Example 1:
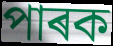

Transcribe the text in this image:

পাৰক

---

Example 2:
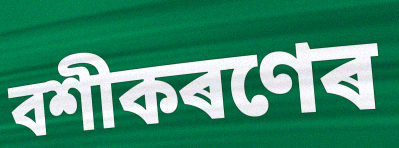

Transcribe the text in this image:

বশীকৰণেৰ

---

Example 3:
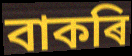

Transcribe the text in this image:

বাকৰি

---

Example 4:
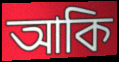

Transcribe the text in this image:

আকি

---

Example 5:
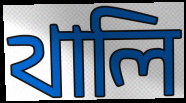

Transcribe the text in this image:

থালি